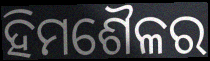
ହିମଶୈଳର